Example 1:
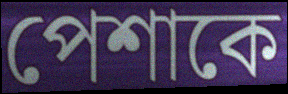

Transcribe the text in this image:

পেশাকে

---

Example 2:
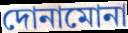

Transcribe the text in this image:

দোনামোনা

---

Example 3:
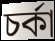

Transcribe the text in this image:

চর্কা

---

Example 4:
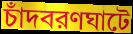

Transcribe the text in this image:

চাঁদবরণঘাটে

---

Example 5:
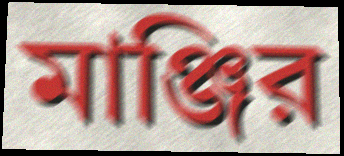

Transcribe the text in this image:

মাঞ্জির